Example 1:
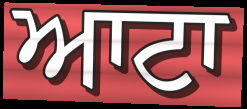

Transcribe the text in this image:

ਆਟਾ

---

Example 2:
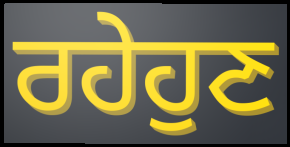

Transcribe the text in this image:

ਰਹੇਹੁਣ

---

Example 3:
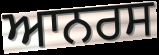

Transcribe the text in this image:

ਆਨਰਸ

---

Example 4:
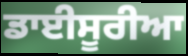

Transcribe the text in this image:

ਡਾਈਸੂਰੀਆ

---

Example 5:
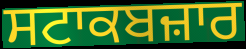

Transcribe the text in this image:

ਸਟਾਕਬਜ਼ਾਰ